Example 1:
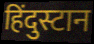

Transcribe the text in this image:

हिंदुस्टान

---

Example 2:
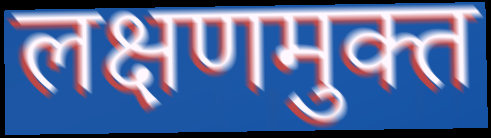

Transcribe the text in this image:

लक्षणमुक्त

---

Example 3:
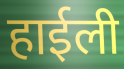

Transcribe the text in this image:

हाईली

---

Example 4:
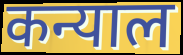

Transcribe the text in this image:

कन्याल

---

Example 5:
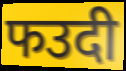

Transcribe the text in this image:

फउदी